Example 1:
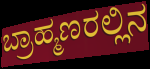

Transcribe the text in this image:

ಬ್ರಾಹ್ಮಣರಲ್ಲಿನ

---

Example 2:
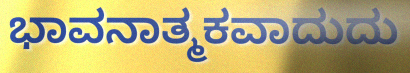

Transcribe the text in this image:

ಭಾವನಾತ್ಮಕವಾದುದು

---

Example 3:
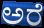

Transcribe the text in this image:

ಅರೆ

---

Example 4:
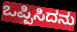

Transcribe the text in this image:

ಒಪ್ಪಿಸಿದನು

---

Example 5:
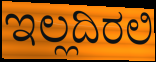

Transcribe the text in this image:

ಇಲ್ಲದಿರಲಿ